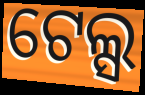
ଟେଲ୍ସ